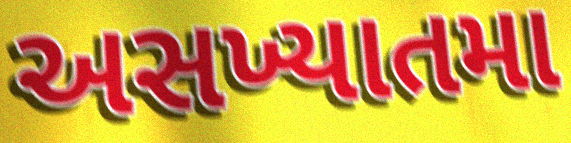
અસખ્યાતમા